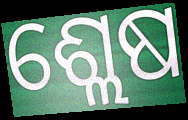
ଶ୍ଲେଷ